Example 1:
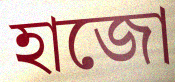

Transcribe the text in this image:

হাজো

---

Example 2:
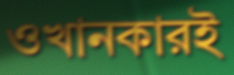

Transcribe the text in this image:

ওখানকারই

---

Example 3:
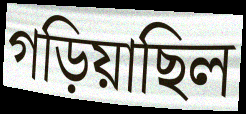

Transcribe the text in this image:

গড়িয়াছিল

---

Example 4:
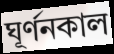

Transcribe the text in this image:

ঘূর্ণনকাল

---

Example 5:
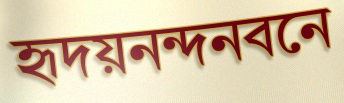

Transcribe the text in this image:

হৃদয়নন্দনবনে